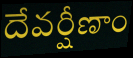
దేవర్షీణాం